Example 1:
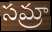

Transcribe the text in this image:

సమ్రా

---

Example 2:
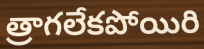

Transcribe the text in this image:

త్రాగలేకపోయిరి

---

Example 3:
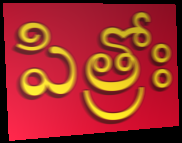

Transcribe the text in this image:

పిత్రోః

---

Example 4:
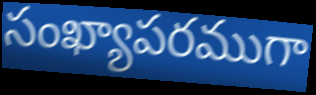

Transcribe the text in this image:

సంఖ్యాపరముగా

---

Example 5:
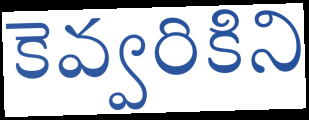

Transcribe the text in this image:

కెవ్వరికిని